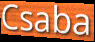
Csaba